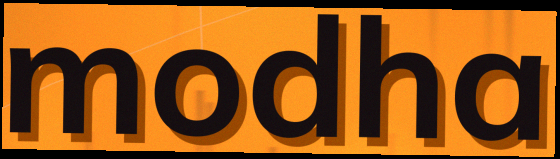
modha